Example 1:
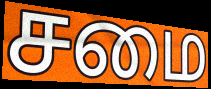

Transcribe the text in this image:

சமை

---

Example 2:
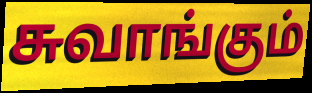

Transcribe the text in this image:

சுவாங்கும்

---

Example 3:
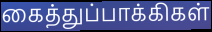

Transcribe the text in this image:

கைத்துப்பாக்கிகள்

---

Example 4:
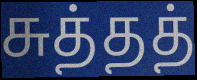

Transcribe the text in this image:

சுத்தத்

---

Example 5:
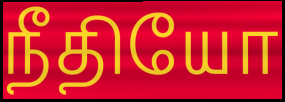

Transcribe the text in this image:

நீதியோ